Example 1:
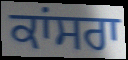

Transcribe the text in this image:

ਕਾਂਸਰਾ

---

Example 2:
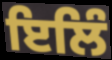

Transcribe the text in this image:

ਇਲਿੰ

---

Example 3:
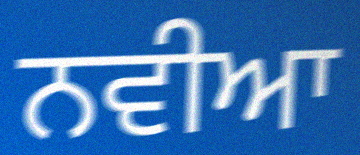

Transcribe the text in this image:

ਨਵੀਆ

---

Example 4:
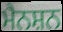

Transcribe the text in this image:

ਮੈਨਸ਼ਨ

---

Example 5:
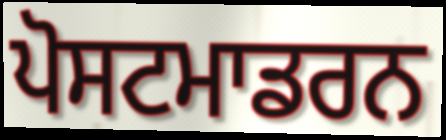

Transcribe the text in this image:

ਪੋਸਟਮਾਡਰਨ